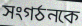
সংগঠনকে